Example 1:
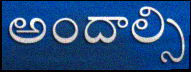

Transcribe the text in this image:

అందాల్సి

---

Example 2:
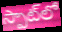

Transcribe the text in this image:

స్పాట్‌లో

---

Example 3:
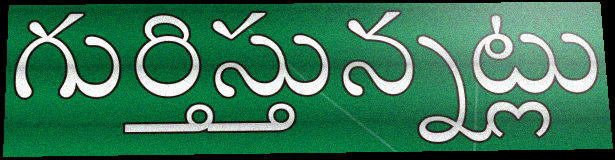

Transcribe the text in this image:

గుర్తిస్తున్నట్లు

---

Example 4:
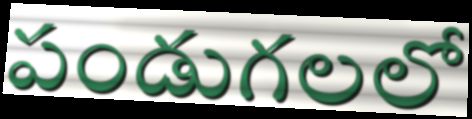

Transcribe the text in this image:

పండుగలలో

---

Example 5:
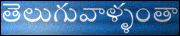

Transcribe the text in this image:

తెలుగువాళ్ళంతా